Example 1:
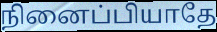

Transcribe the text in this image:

நினைப்பியாதே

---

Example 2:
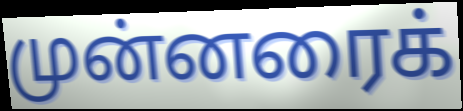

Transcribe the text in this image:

முன்னரைக்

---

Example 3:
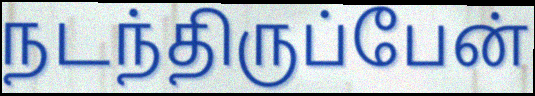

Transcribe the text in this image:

நடந்திருப்பேன்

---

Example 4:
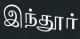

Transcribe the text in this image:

இந்தூர்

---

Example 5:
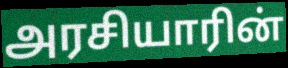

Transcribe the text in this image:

அரசியாரின்